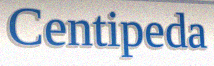
Centipeda